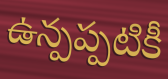
ఉన్పప్పటికీ